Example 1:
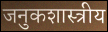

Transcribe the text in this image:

जनुकशास्त्रीय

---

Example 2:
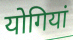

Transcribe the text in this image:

योगियां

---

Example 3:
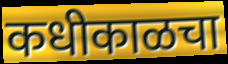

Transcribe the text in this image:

कधीकाळचा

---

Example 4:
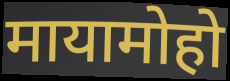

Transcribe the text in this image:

मायामोहो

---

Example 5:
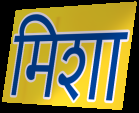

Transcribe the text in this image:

मिशा